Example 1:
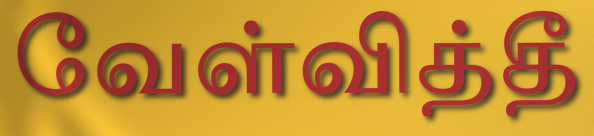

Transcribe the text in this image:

வேள்வித்தீ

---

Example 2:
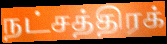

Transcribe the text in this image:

நட்சத்திரக்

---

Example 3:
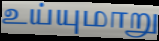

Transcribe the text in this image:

உய்யுமாறு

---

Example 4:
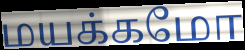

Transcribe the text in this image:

மயக்கமோ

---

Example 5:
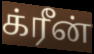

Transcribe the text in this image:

க்ரீன்